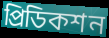
প্রিডিকশন